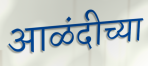
आळंदीच्या